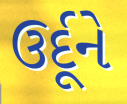
ઉર્દૂને